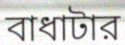
বাধাটার